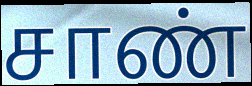
சாண்